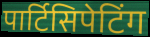
पार्टिसिपेटिंग